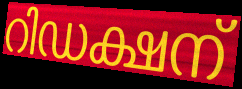
റിഡക്ഷന്